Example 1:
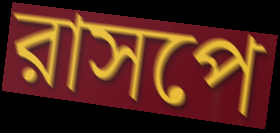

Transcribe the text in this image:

রাসপে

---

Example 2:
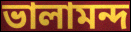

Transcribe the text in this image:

ভালামন্দ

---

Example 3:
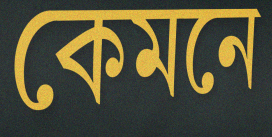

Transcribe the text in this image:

কেমনে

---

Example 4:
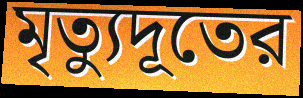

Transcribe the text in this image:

মৃত্যুদূতের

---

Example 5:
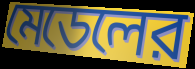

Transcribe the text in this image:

মেডেলের